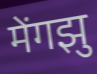
मेंगझु